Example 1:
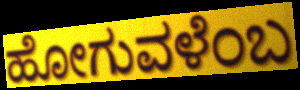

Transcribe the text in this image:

ಹೋಗುವಳೆಂಬ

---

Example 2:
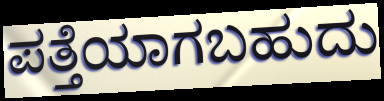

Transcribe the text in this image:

ಪತ್ತೆಯಾಗಬಹುದು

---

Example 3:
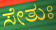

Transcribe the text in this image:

ಸೇತುಃ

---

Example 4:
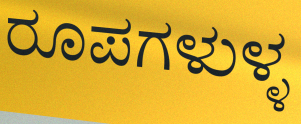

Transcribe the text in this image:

ರೂಪಗಳುಳ್ಳ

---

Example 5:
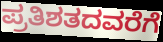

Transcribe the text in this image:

ಪ್ರತಿಶತದವರೆಗೆ